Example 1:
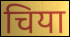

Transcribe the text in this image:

चिया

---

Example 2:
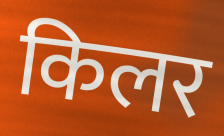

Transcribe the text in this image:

किलर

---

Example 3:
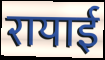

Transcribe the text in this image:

रायाई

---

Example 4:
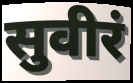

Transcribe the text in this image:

सुवीरं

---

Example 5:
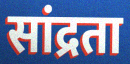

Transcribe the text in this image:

सांद्रता